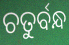
ଚତୁର୍ବନ୍ଧ